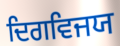
ਦਿਗਵਿਜਯ